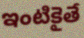
ఇంటికైతే